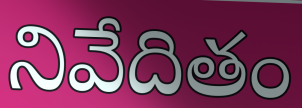
నివేదితం